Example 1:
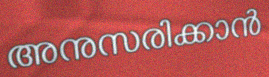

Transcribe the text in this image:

അനുസരിക്കാൻ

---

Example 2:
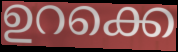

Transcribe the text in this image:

ഉറക്കെ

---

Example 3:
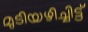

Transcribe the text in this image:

മുടിയഴിച്ചിട്ട്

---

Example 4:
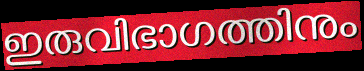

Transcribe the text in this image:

ഇരുവിഭാഗത്തിനും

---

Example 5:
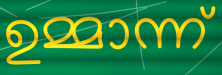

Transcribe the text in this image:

ഉമ്മാന്ന്